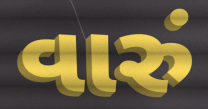
વારું